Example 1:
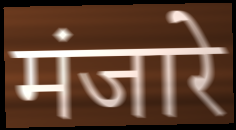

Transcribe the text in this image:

मंजारे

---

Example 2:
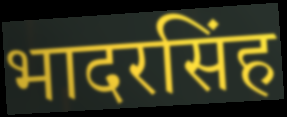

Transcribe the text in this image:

भादरसिंह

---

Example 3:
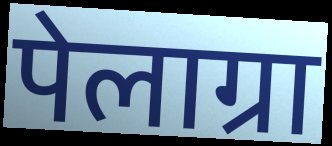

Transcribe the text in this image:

पेलाग्रा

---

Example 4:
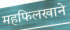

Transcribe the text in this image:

महफिलखाने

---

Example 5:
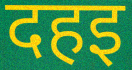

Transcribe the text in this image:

दहइ